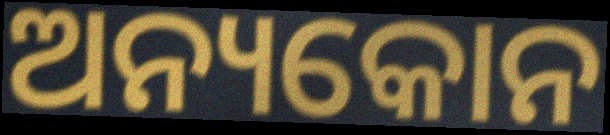
ଅନ୍ୟକୋନ